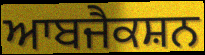
ਆਬਜੈਕਸ਼ਨ